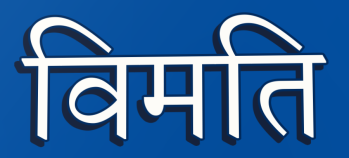
विमति